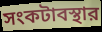
সংকটাবস্থার